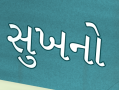
સુખનો